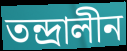
তন্দ্রালীন